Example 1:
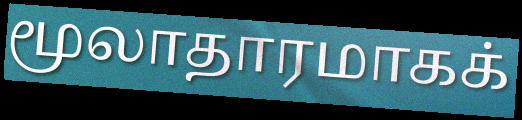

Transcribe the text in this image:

மூலாதாரமாகக்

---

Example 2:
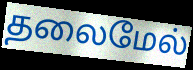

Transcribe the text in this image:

தலைமேல்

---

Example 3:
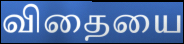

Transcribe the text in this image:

விதையை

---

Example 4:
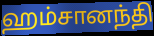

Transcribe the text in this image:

ஹம்சானந்தி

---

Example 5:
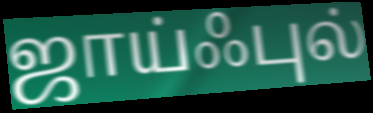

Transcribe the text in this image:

ஜாய்ஃபுல்